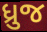
ધ્રુજ